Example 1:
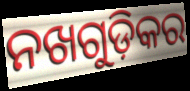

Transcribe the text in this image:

ନଖଗୁଡ଼ିକର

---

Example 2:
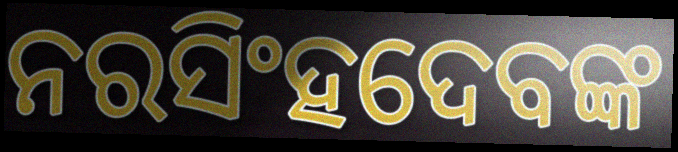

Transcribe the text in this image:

ନରସିଂହଦେବଙ୍କ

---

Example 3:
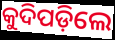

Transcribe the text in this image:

କୁଦିପଡ଼ିଲେ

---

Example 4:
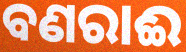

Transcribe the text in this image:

ବଣରାଈ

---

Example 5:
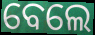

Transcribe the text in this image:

ବେଲେ